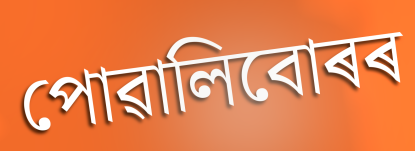
পোৱালিবোৰৰ